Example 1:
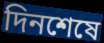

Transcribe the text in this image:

দিনশেষে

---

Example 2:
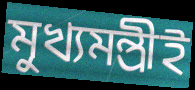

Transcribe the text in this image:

মুখ্যমন্ত্রীই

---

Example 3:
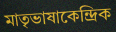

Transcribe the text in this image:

মাতৃভাষাকেন্দ্রিক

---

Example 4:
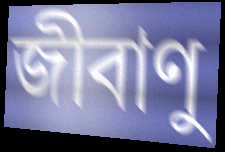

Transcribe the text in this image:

জীবাণু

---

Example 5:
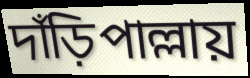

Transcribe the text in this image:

দাঁড়িপাল্লায়